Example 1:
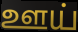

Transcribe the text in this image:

ஊய்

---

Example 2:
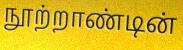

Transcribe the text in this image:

நூற்றாண்டின்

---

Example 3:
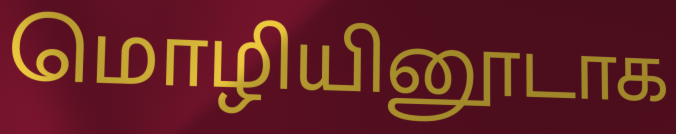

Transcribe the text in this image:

மொழியினூடாக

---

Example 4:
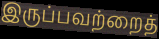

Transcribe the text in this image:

இருப்பவற்றைத்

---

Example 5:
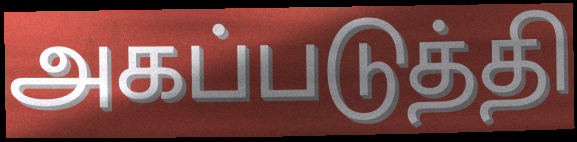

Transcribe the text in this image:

அகப்படுத்தி